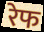
रेफ